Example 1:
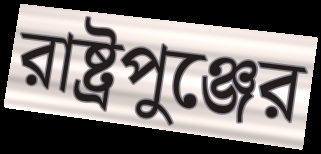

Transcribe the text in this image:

রাষ্ট্রপুঞ্জের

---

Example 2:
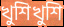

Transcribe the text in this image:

খুশিখুশি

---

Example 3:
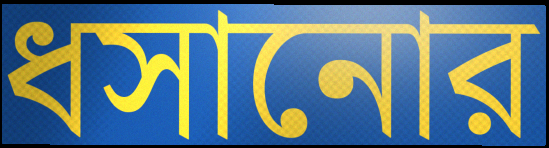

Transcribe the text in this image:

ধসানোর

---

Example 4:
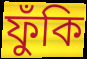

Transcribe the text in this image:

ফুঁকি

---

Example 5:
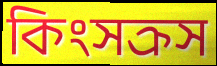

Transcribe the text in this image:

কিংসক্রস